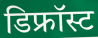
डिफ्रॉस्ट